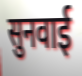
सुनवाई